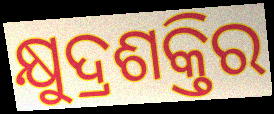
କ୍ଷୁଦ୍ରଶକ୍ତିର